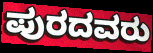
ಪುರದವರು